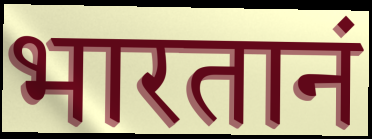
भारतानं